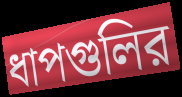
ধাপগুলির